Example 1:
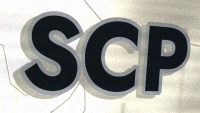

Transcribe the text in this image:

SCP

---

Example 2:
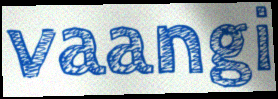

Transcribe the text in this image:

vaangi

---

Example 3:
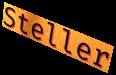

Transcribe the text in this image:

Steller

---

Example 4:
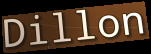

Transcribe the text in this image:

Dillon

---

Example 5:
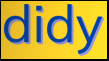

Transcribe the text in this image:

didy